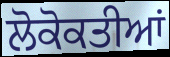
ਲੋਕੋਕਤੀਆਂ